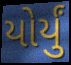
યોર્યું